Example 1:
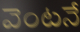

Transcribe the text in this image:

వెంటనే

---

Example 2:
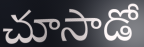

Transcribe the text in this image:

చూసాడో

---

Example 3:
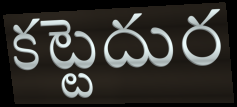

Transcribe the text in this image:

కట్టెదుర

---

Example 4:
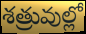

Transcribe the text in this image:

శత్రువుల్లో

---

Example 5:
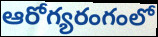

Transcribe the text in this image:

ఆరోగ్యరంగంలో